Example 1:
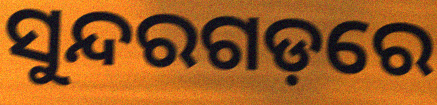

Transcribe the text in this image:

ସୁନ୍ଦରଗଡ଼ରେ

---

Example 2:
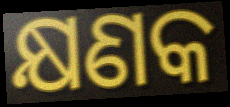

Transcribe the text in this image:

କ୍ଷଣକ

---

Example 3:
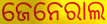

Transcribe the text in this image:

ଜେନେରାଲ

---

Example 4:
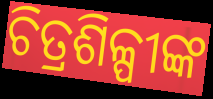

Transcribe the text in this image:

ଚିତ୍ରଶିଳ୍ପୀଙ୍କ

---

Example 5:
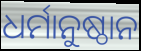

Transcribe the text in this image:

ଧର୍ମାନୁଷ୍ଠାନ